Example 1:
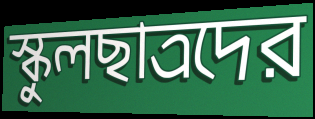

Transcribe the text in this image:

স্কুলছাত্রদের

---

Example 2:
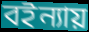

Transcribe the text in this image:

বইন্যায়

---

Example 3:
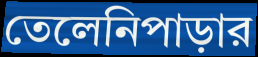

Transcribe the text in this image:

তেলেনিপাড়ার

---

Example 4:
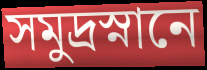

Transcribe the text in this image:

সমুদ্রস্নানে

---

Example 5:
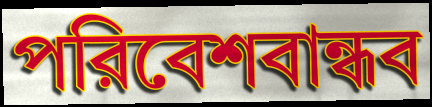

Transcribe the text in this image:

পরিবেশবান্ধব